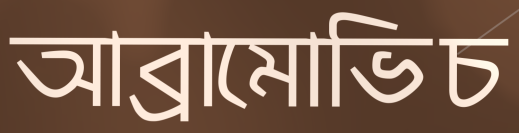
আব্রামোভিচ